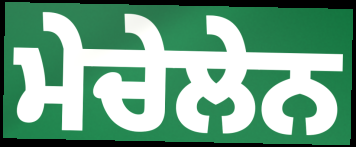
ਮੇਚੇਲੇਨ